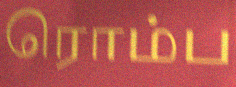
ரொம்ப